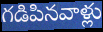
గడిపినవాళ్లు